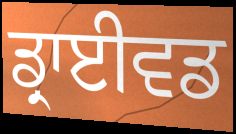
ਡ੍ਰਾਈਵਡ